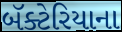
બૅક્ટેરિયાના